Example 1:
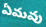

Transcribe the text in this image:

ఏమవు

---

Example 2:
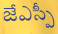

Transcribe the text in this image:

జేఎస్పీ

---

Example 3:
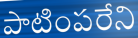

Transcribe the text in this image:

పాటింపరేని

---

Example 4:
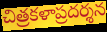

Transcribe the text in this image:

చిత్రకళాప్రదర్శన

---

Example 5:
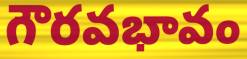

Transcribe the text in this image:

గౌరవభావం